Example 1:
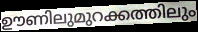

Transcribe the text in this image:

ഊണിലുമുറക്കത്തിലും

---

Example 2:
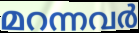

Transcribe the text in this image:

മറന്നവർ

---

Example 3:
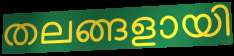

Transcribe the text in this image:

തലങ്ങളായി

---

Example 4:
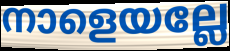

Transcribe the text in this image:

നാളെയല്ലേ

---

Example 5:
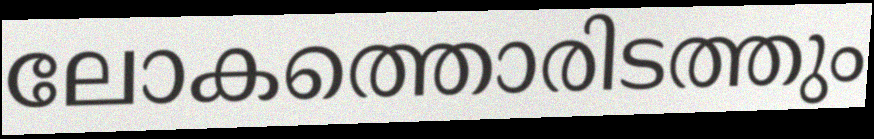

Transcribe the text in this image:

ലോകത്തൊരിടത്തും